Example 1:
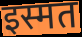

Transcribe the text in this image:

इस्मत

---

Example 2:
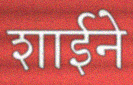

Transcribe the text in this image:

शाईने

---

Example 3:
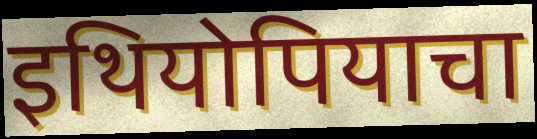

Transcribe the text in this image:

इथियोपियाचा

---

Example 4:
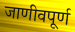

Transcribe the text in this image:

जाणीवपूर्ण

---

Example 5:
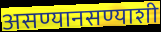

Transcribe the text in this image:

असण्यानसण्याशी